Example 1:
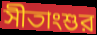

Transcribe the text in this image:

সীতাংশুর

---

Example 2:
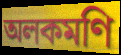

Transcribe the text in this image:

অলকমণি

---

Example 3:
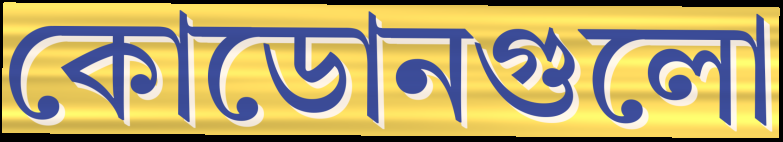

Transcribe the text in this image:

কোডোনগুলো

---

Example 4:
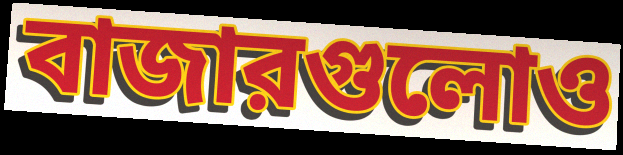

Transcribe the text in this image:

বাজারগুলোও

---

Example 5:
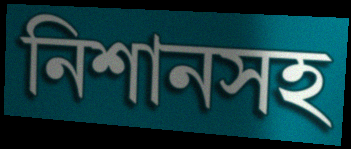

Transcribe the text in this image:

নিশানসহ